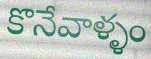
కొనేవాళ్ళం